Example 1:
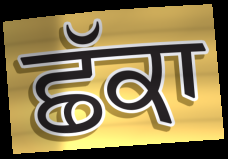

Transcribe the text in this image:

ਛੱਕਾ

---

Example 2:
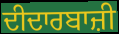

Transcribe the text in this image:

ਦੀਦਾਰਬਾਜ਼ੀ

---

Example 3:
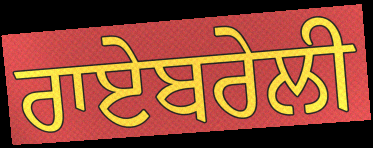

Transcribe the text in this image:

ਰਾਏਬਰੇਲੀ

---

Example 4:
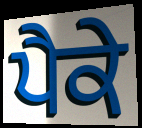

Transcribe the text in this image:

ਪੈਕੇ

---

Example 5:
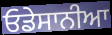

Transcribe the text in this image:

ਓਡੇਸਾਨੀਆ